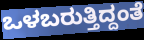
ಒಳಬರುತ್ತಿದ್ದಂತೆ